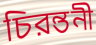
চিরন্তনী